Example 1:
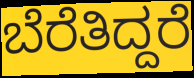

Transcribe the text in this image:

ಬೆರೆತಿದ್ದರೆ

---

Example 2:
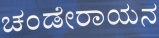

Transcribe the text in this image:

ಚಂಡೇರಾಯನ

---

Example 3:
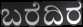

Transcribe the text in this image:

ಬರೆದಿರ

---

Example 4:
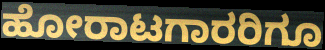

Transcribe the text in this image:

ಹೋರಾಟಗಾರರಿಗೂ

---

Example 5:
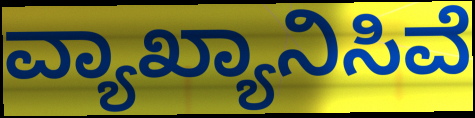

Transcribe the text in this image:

ವ್ಯಾಖ್ಯಾನಿಸಿವೆ